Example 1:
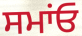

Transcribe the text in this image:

ਸਮਾਂਓ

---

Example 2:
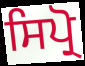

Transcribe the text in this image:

ਸਿਪ੍ਰੋ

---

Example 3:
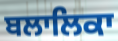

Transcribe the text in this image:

ਬਲਾਲਿਕਾ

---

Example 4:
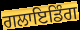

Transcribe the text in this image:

ਗਲਾਇਡਿੰਗ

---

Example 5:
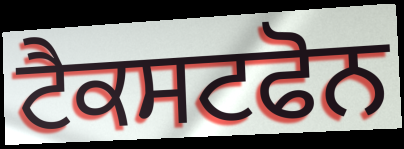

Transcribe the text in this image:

ਟੈਕਸਟਫੋਨ